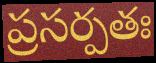
ప్రసర్పతః